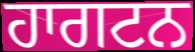
ਹਾਗਟਨ